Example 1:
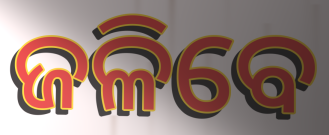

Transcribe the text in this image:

ଜଳିବେ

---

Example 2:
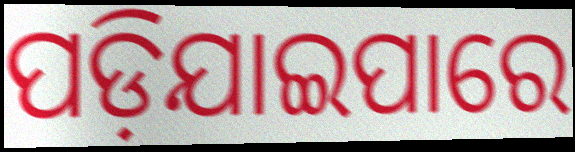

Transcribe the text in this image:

ପଡ଼ିଯାଇପାରେ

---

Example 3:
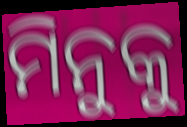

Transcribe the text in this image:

ମିନୁକୁ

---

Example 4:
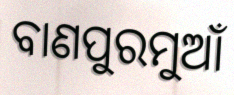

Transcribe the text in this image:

ବାଣପୁରମୁଆଁ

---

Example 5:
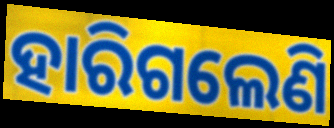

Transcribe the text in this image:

ହାରିଗଲେଣି